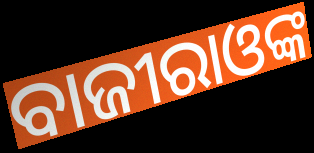
ବାଜୀରାଓଙ୍କ